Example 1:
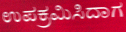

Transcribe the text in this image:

ಉಪಕ್ರಮಿಸಿದಾಗ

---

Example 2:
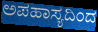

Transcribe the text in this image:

ಅಪಹಾಸ್ಯದಿಂದ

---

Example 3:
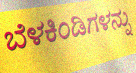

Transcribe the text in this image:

ಬೆಳಕಿಂಡಿಗಳನ್ನು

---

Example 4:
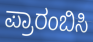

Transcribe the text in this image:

ಪ್ರಾರಂಬಿಸಿ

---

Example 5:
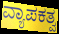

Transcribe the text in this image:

ವ್ಯಾಪಕತ್ವ